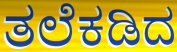
ತಲೆಕಡಿದ